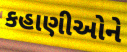
કહાણીઓને